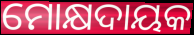
ମୋକ୍ଷଦାୟକ